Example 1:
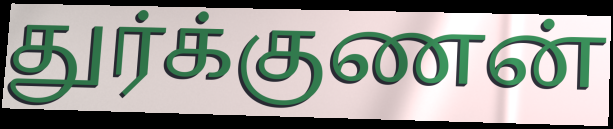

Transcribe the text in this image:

துர்க்குணன்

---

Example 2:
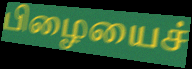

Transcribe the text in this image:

பிழையைச்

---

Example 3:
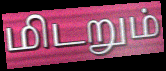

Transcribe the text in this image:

மிடறும்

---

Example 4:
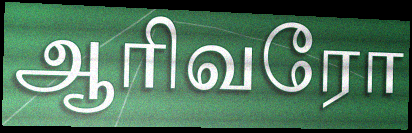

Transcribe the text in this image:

ஆரிவரோ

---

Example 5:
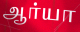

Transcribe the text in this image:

ஆர்யா